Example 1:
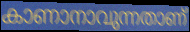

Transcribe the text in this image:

കാണാനാവുന്നതാണ്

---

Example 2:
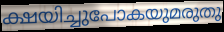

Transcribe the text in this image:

ക്ഷയിച്ചുപോകയുമരുതു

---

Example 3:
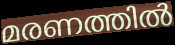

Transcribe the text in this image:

മരണത്തിൽ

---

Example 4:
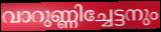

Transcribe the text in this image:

വാറുണ്ണിച്ചേട്ടനും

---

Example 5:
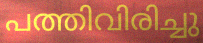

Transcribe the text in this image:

പത്തിവിരിച്ചു